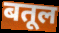
बतूल